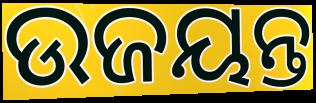
ଉଜୟନ୍ତ